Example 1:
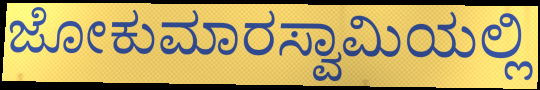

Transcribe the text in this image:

ಜೋಕುಮಾರಸ್ವಾಮಿಯಲ್ಲಿ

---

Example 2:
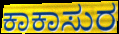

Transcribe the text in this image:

ಕಾಕಾಸುರ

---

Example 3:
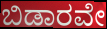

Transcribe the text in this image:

ಬಿಡಾರವೇ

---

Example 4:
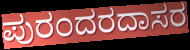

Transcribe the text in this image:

ಪುರಂದರದಾಸರ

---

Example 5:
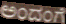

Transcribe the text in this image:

ಅಂದಂಗೆ